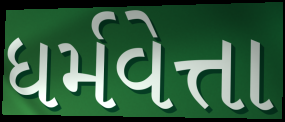
ધર્મવેત્તા